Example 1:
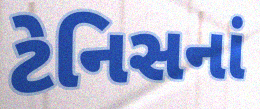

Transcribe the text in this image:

ટેનિસનાં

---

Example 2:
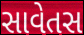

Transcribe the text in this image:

સાવેતસ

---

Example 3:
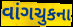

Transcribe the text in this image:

વાંગચુકના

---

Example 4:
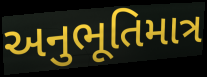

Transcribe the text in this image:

અનુભૂતિમાત્ર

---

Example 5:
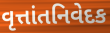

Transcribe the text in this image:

વૃત્તાંતનિવેદક